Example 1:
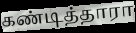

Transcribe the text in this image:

கண்டித்தாரா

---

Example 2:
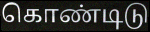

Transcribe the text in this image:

கொண்டிடு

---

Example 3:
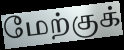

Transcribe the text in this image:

மேற்குக்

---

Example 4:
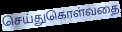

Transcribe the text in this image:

செய்துகொள்வதை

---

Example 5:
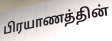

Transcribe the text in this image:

பிரயாணத்தின்